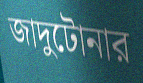
জাদুটোনার